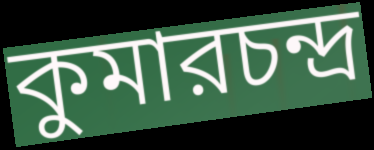
কুমারচন্দ্র